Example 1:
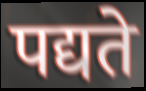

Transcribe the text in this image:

पद्यते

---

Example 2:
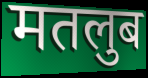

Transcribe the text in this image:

मतलुब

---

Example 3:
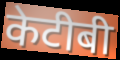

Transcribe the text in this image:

केटीबी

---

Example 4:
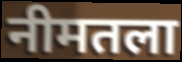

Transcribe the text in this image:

नीमतला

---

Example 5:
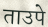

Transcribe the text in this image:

ताउपे